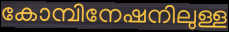
കോമ്പിനേഷനിലുള്ള